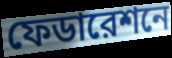
ফেডারেশনে